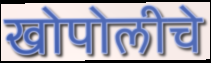
खोपोलीचे